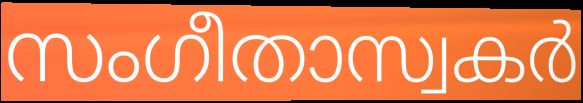
സംഗീതാസ്വകർ